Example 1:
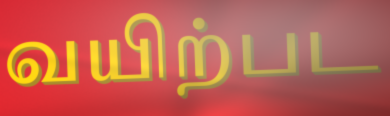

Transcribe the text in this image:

வயிற்பட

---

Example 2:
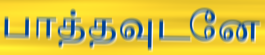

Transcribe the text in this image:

பாத்தவுடனே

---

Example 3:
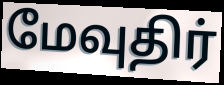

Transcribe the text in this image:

மேவுதிர்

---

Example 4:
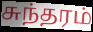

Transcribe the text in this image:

சுந்தரம்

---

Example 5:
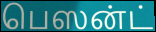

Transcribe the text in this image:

பெஸன்ட்